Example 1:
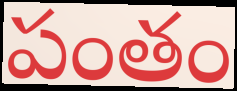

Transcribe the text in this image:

పంతం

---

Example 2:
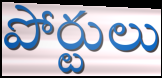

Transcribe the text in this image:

పోర్టులు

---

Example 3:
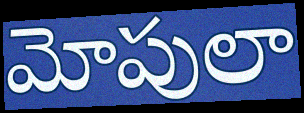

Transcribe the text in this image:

మోపులా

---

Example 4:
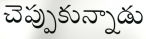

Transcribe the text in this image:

చెప్పుకున్నాడు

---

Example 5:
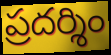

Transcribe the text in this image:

ప్రదర్శిం